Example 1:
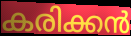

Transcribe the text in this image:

കരിക്കൻ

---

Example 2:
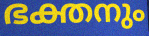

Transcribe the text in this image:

ഭക്തനും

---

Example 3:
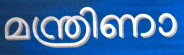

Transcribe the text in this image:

മന്ത്രിണാ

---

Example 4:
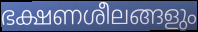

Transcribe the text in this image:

ഭക്ഷണശീലങ്ങളും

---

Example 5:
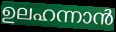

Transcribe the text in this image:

ഉലഹന്നാൻ